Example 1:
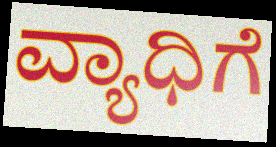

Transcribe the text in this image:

ವ್ಯಾಧಿಗೆ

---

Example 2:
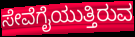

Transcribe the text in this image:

ಸೇವೆಗೈಯುತ್ತಿರುವ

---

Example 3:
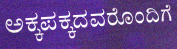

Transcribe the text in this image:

ಅಕ್ಕಪಕ್ಕದವರೊಂದಿಗೆ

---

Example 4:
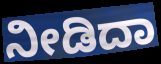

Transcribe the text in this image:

ನೀಡಿದಾ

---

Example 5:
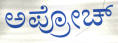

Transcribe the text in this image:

ಅಪ್ರೋಚ್